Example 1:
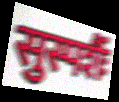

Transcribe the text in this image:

सुस्पर्शैः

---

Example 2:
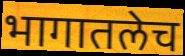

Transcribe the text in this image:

भागातलेच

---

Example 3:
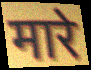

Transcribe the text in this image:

मारे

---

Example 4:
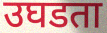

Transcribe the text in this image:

उघडता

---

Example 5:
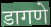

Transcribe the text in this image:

डागणे